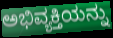
ಅಭಿವ್ಯಕ್ತಿಯನ್ನು